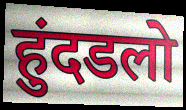
हुंदडलो